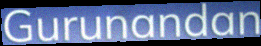
Gurunandan